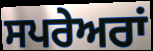
ਸਪਰੇਅਰਾਂ